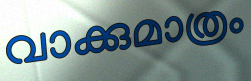
വാക്കുമാത്രം